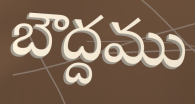
బౌద్దము